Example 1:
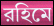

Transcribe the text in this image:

রহিমে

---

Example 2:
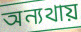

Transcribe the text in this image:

অন্যথায়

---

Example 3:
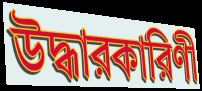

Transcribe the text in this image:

উদ্ধারকারিণী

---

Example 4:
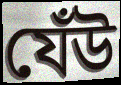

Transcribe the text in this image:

যেঁউ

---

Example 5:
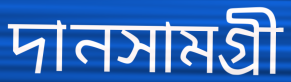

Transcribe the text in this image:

দানসামগ্রী